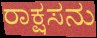
ರಾಕ್ಷಸನು